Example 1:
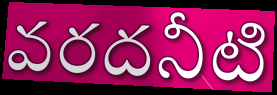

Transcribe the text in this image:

వరదనీటి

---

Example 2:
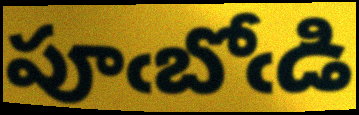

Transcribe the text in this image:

పూఁబోఁడి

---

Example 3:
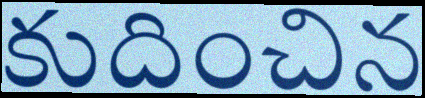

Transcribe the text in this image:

కుదించిన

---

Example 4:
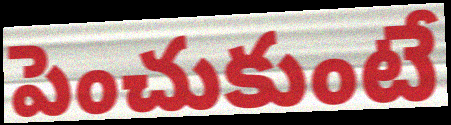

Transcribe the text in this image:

పెంచుకుంటే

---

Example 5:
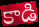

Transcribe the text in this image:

కాడి